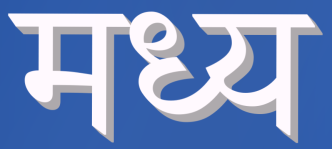
मध्य